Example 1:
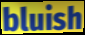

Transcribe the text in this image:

bluish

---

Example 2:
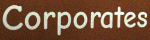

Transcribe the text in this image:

Corporates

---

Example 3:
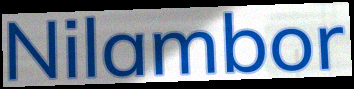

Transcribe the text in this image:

Nilambor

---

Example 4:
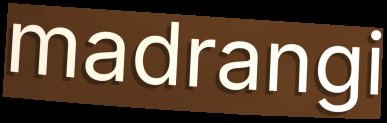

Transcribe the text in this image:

madrangi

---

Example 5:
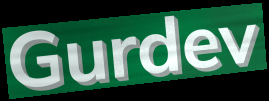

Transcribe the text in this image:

Gurdev